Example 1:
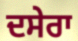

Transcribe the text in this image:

ਦਸੇਰਾ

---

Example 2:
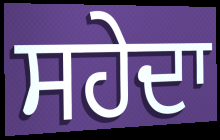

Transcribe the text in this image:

ਸਹੇਦਾ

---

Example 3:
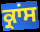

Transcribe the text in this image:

ਕ੍ਰਾਂਸ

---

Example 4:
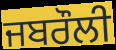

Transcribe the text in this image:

ਜਬਰੌਲੀ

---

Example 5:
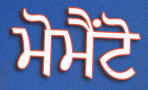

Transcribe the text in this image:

ਮੋਮੈਂਟੋ